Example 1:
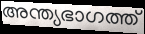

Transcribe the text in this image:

അന്ത്യഭാഗത്ത്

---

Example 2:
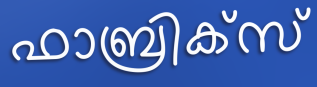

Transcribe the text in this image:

ഫാബ്രിക്സ്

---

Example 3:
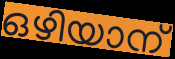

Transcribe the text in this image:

ഒഴിയാന്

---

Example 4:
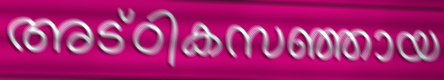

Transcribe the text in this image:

അട്ഠികസഞ്ഞായ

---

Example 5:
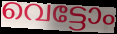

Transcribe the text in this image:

വെട്ടോം